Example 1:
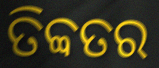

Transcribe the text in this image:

ତିବ୍ବତର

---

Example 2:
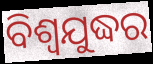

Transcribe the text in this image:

ବିଶ୍ୱଯୁଦ୍ଧର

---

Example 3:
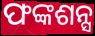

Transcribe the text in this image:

ଫଙ୍କଶନ୍ସ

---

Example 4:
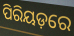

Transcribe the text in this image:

ପିରିୟଡ଼ରେ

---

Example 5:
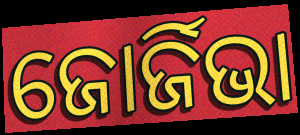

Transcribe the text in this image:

ଜୋର୍ଜିଭା